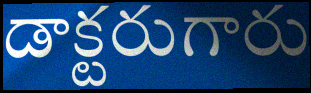
డాక్టరుగారు